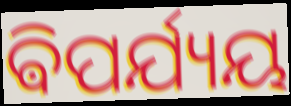
ଵିପର୍ଯ୍ୟୟ